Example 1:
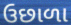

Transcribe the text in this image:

ઉછાળા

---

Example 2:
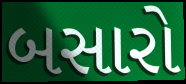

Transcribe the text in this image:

બસારો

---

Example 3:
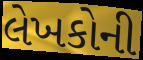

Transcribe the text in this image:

લેખકોની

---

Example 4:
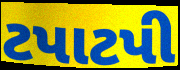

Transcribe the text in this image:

ટપાટપી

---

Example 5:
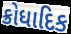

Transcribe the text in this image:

ક્રોધાદિક